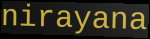
nirayana